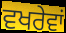
ਵਖਰੇਵਾਂ